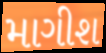
માગીશ